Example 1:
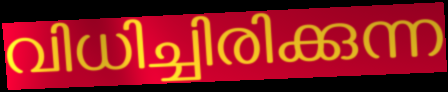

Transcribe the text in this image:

വിധിച്ചിരിക്കുന്ന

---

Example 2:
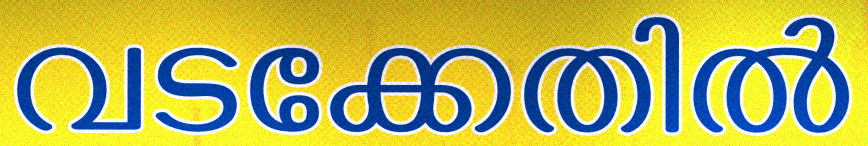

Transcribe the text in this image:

വടക്കേതിൽ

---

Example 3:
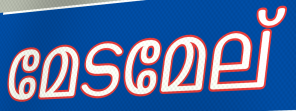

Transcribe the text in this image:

മേടമേല്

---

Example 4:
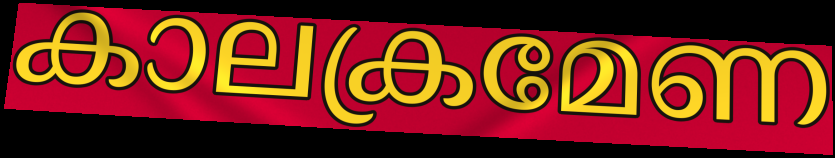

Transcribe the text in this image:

കാലക്രമേണ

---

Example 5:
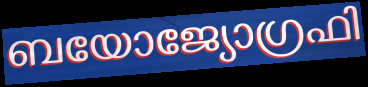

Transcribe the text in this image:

ബയോജ്യോഗ്രഫി